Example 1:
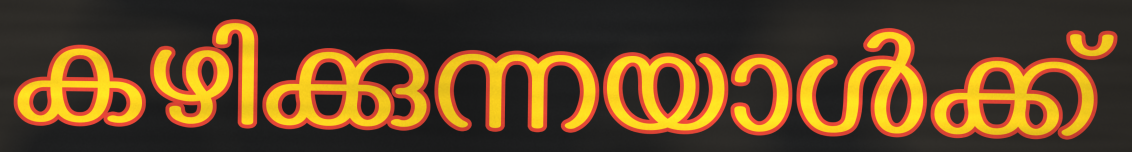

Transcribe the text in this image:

കഴിക്കുന്നയാൾക്ക്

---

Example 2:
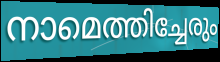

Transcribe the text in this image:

നാമെത്തിച്ചേരും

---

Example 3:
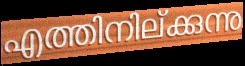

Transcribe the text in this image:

എത്തിനില്ക്കുന്നു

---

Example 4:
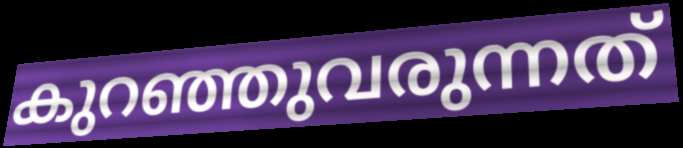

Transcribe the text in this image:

കുറഞ്ഞുവരുന്നത്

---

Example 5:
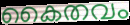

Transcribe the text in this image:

കൈതവം